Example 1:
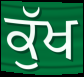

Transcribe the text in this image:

ਕੁੱਖ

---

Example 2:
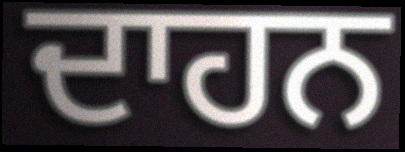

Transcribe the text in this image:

ਦਾਹਨ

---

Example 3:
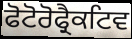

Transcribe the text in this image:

ਫੋਟੋਰੋਫ੍ਰੈਕਟਿਵ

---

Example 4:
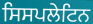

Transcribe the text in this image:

ਸਿਸਪਲੇਟਿਨ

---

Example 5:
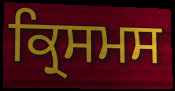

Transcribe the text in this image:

ਕ੍ਰਿਸਮਸ